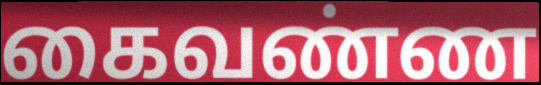
கைவண்ண